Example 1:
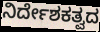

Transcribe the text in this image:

ನಿರ್ದೇಶಕತ್ವದ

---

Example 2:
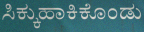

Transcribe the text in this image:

ಸಿಕ್ಕುಹಾಕಿಕೊಂಡು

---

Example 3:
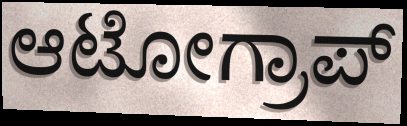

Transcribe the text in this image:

ಆಟೋಗ್ರಾಪ್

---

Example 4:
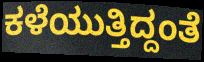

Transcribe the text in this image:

ಕಳೆಯುತ್ತಿದ್ದಂತೆ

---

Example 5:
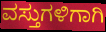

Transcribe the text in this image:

ವಸ್ತುಗಳಿಗಾಗಿ